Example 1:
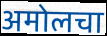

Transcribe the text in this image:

अमोलचा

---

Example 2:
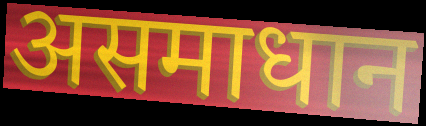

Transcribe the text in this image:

असमाधान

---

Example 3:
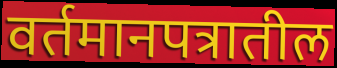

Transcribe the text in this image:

वर्तमानपत्रातील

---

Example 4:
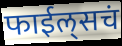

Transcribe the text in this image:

फाईल्सचं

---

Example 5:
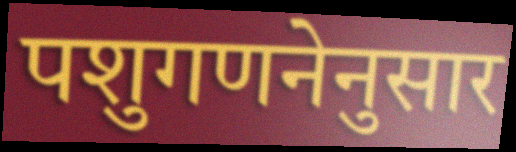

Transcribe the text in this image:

पशुगणनेनुसार